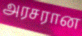
அரசரான